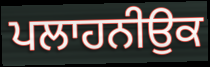
ਪਲਾਹਨੀਉਕ